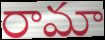
రామా